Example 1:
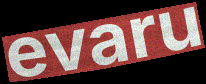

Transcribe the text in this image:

evaru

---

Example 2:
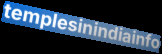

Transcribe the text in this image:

templesinindiainfo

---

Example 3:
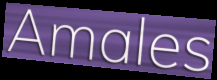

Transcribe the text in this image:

Amales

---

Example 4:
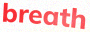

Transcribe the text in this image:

breath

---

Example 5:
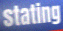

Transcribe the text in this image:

stating